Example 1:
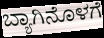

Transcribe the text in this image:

ಬ್ಯಾಗಿನೊಳಗೆ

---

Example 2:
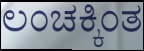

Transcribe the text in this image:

ಲಂಚಕ್ಕಿಂತ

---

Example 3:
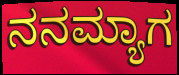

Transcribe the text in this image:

ನನಮ್ಯಾಗ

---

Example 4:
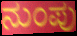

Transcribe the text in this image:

ನುಂಪು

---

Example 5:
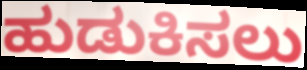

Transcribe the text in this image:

ಹುಡುಕಿಸಲು